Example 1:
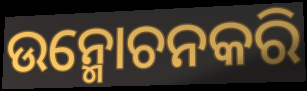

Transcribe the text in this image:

ଉନ୍ମୋଚନକରି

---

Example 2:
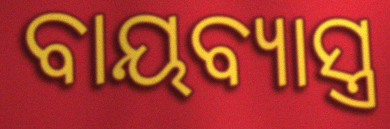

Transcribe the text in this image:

ବାୟବ୍ୟାସ୍ତ୍ର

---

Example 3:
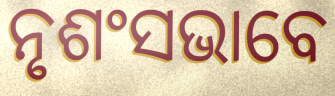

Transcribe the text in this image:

ନୃଶଂସଭାବେ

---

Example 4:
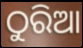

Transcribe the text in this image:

ଠୁରିଆ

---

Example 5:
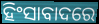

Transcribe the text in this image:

ହିଂସାବାଦରେ